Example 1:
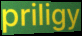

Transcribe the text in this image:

priligy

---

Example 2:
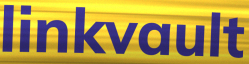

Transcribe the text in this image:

linkvault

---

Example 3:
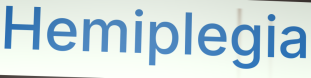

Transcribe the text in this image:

Hemiplegia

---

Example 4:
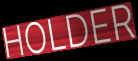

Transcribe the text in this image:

HOLDER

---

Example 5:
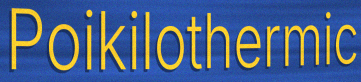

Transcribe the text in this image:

Poikilothermic